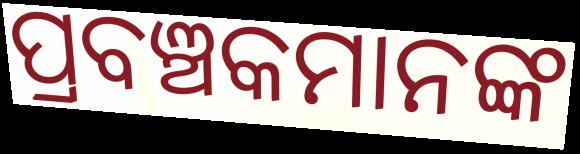
ପ୍ରବଞ୍ଚକମାନଙ୍କ